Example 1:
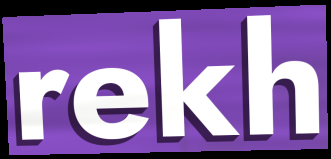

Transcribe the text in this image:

rekh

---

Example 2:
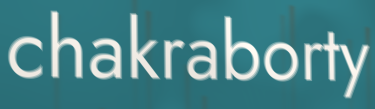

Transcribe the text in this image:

chakraborty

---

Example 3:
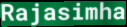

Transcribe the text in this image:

Rajasimha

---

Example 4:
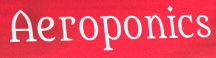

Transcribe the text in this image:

Aeroponics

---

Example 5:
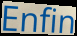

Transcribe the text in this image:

Enfin